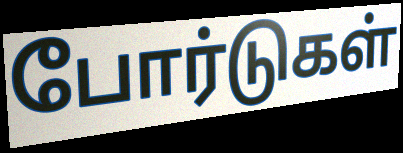
போர்டுகள்